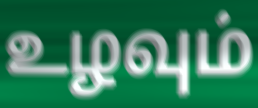
உழவும்